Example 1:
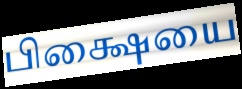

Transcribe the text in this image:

பிக்ஷையை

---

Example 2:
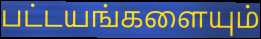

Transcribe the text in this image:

பட்டயங்களையும்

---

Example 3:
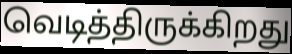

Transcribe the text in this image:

வெடித்திருக்கிறது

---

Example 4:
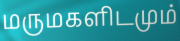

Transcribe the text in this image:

மருமகளிடமும்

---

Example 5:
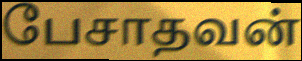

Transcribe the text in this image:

பேசாதவன்